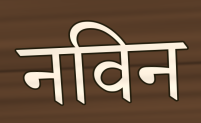
नविन